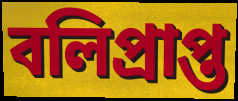
বলিপ্রাপ্ত